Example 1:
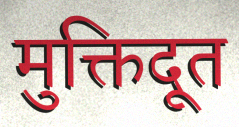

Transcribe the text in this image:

मुक्तिदूत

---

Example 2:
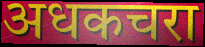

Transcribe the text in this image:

अधकचरा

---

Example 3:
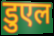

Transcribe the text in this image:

डुएल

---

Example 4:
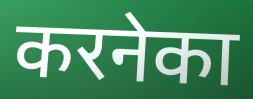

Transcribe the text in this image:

करनेका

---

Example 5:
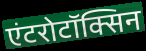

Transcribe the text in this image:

एंटरोटॉक्सिन